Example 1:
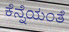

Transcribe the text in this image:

ಕೆನ್ನೆಯಂತೆ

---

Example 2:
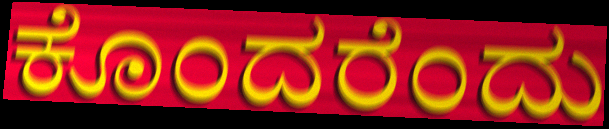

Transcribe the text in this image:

ಕೊಂದರೆಂದು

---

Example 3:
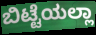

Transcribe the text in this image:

ಬಿಟ್ಟೆಯಲ್ಲಾ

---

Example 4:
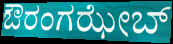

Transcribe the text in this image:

ಔರಂಗಝೇಬ್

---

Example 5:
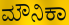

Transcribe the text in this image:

ಮೌನಿಕಾ